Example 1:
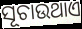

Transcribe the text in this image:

ସୂଚାଉଥାଏ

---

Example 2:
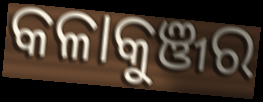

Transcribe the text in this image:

କଳାକୁଞ୍ଜର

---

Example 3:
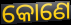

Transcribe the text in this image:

କୋଣେ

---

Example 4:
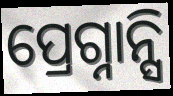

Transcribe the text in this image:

ପ୍ରେଗ୍ନାନ୍ସି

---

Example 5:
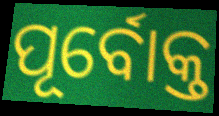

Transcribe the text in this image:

ପୂର୍ବୋକ୍ତ